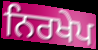
ਨਿਰਖੇਪ